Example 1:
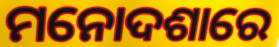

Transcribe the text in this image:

ମନୋଦଶାରେ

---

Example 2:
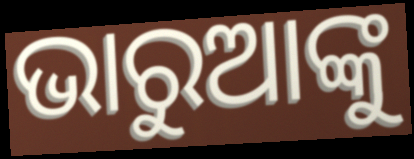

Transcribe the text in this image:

ଭାରୁଆଙ୍କୁ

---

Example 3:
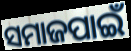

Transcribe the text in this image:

ସମାଜପାଇଁ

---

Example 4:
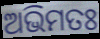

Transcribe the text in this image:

ଅଭିମତଃ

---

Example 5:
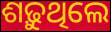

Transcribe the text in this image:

ଶଢ଼ୁଥିଲେ